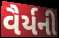
વૈર્યની